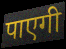
पाएगी